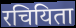
रचियिता